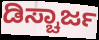
ಡಿಸ್ಚಾರ್ಜ